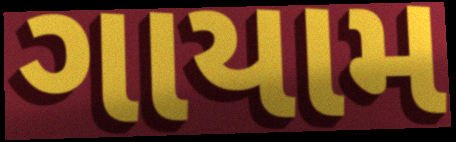
ગાયામ